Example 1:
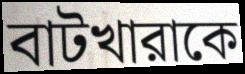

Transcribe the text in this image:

বাটখারাকে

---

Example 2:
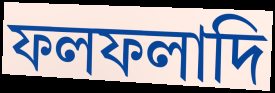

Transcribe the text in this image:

ফলফলাদি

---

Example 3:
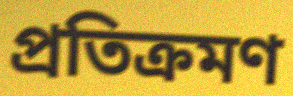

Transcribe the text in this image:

প্রতিক্রমণ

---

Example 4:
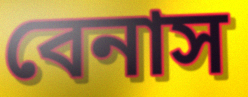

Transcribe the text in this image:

বেনাস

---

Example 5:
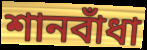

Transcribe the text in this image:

শানবাঁধা